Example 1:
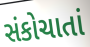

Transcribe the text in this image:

સંકોચાતાં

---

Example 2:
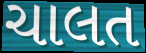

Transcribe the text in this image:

ચાલત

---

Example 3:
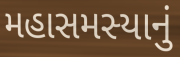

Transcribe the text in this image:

મહાસમસ્યાનું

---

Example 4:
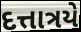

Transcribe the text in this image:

દત્તાત્રયે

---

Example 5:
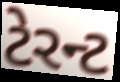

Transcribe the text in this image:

ટેરન્ટ